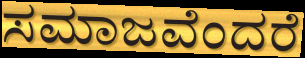
ಸಮಾಜವೆಂದರೆ